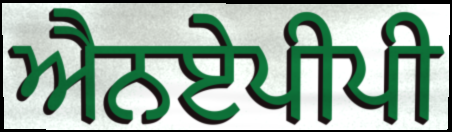
ਐਨਏਪੀਪੀ